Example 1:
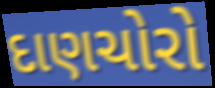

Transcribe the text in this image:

દાણચોરો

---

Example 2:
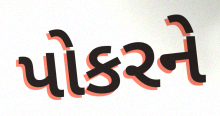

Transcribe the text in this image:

પોકરને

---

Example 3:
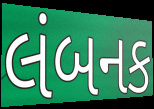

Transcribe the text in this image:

લંબનક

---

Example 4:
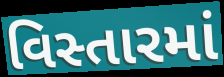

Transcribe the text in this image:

વિસ્તારમાં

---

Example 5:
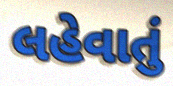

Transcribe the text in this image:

લહેવાતું